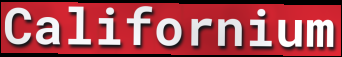
Californium